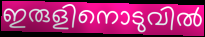
ഇരുളിനൊടുവിൽ